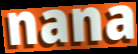
nana